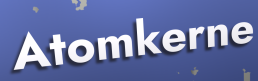
Atomkerne